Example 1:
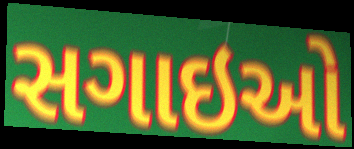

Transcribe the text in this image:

સગાઇઓ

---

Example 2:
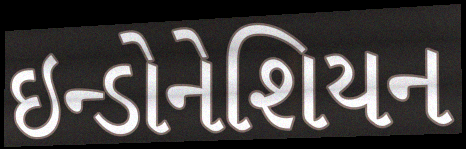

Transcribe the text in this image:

ઇન્ડોનેશિયન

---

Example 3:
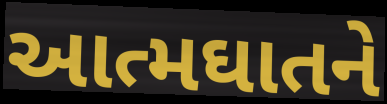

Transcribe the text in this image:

આત્મઘાતને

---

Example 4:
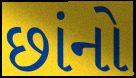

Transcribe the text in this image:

છાંનો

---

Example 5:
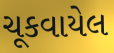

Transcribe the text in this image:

ચૂકવાયેલ